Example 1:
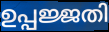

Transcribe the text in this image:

ഉപ്പജ്ജതി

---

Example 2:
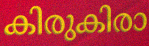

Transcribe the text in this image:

കിരുകിരാ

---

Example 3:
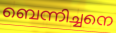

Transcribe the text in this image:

ബെന്നിച്ചനെ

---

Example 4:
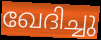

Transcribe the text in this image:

ഖേദിച്ചു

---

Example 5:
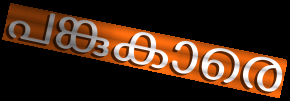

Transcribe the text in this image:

പങ്കുകാരെ